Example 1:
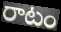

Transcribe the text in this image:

రాటం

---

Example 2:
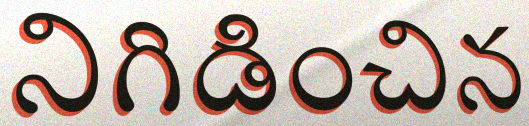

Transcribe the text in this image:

నిగిడించిన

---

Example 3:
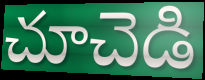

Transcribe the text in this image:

చూచెడి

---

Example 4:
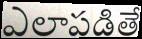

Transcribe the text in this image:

ఎలాపడితే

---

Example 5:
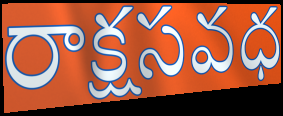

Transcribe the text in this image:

రాక్షసవధ